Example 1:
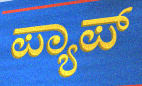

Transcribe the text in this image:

ಪ್ಯಾಪ್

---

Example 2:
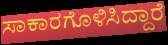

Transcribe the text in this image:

ಸಾಕಾರಗೊಳಿಸಿದ್ದಾರೆ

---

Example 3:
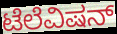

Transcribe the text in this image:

ಟೆಲೆವಿಷನ್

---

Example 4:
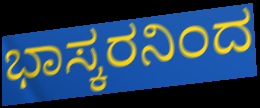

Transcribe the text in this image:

ಭಾಸ್ಕರನಿಂದ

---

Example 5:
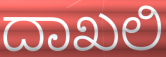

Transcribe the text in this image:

ದಾಖಲಿ